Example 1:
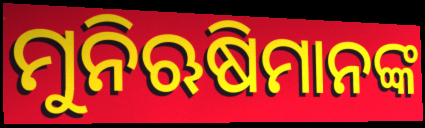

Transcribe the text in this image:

ମୁନିଋଷିମାନଙ୍କ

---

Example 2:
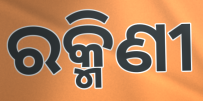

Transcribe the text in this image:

ରକ୍ମିଣୀ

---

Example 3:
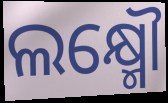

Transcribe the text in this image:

ଲକ୍ଷ୍ମୌ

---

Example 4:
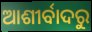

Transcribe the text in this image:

ଆଶୀର୍ବାଦରୁ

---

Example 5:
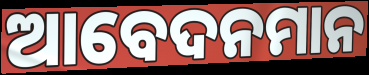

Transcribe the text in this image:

ଆବେଦନମାନ